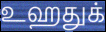
உஹதுக்